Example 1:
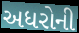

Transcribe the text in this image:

અધરોની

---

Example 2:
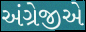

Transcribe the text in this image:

અંગ્રેજીએ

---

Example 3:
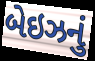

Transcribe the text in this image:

બેઇઝનું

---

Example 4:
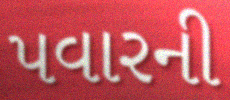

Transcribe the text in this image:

પવારની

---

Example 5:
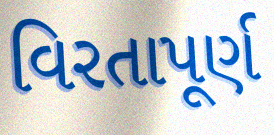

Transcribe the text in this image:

વિરતાપૂર્ણ